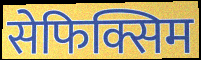
सेफिक्सिम